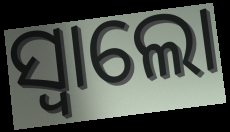
ସ୍ବାଲୋ